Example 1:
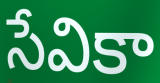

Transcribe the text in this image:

సేవికా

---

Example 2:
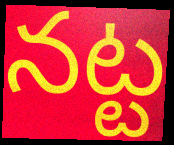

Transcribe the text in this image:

నట్ట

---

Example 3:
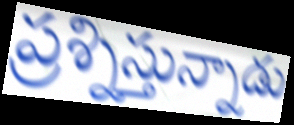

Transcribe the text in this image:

ప్రశ్నిస్తున్నాడు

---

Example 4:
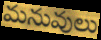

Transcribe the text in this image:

మనువులు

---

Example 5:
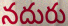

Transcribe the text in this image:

నదురు